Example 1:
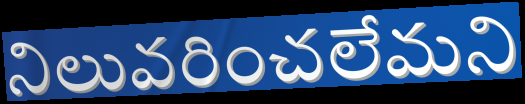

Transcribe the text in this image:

నిలువరించలేమని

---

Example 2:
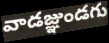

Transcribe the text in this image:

వాడజ్ఞుండగు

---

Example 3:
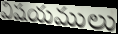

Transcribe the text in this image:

విషయములు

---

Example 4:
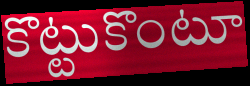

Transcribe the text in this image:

కొట్టుకొంటూ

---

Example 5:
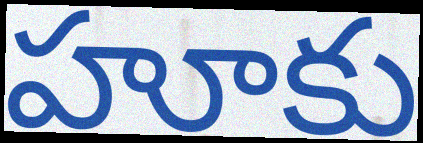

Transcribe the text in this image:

హూకు